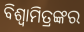
ବିଶ୍ୱାମିତ୍ରଙ୍କର